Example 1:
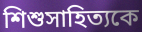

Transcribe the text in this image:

শিশুসাহিত্যকে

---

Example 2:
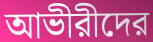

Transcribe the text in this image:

আভীরীদের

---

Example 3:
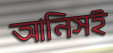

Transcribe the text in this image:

আনিসই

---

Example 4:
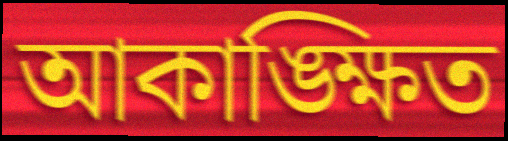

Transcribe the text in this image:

আকাঙ্ক্ষিত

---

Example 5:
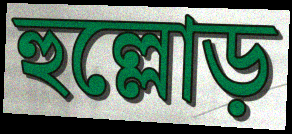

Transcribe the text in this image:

হুল্লোড়